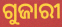
ଗୁଜାରୀ